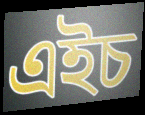
এইচ